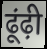
ढूंढ़ी